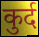
कुर्द